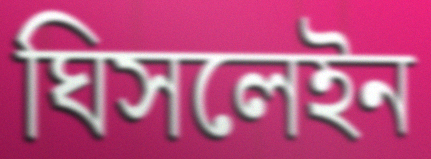
ঘিসলেইন